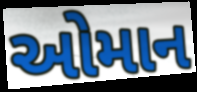
ઓમાન